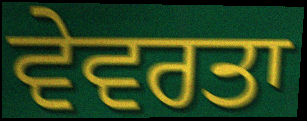
ਵੇਵਰਤਾ